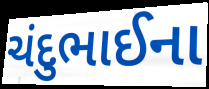
ચંદુભાઈના